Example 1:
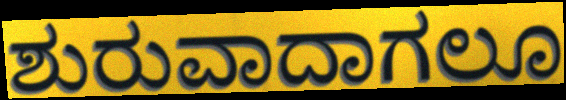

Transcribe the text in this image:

ಶುರುವಾದಾಗಲೂ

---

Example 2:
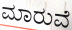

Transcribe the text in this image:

ಮಾರುವೆ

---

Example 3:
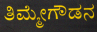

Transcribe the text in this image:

ತಿಮ್ಮೇಗೌಡನ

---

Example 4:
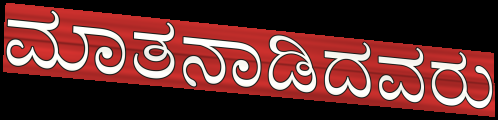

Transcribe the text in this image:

ಮಾತನಾಡಿದವರು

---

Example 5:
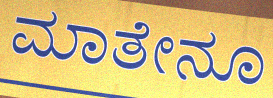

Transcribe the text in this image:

ಮಾತೇನೂ